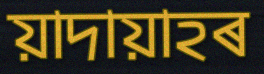
য়াদায়াহৰ